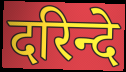
दरिन्दे